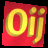
Oij